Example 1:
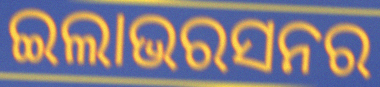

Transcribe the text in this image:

ଇଲାଭରସନର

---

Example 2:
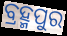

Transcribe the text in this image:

ବ୍ରହ୍ମପୁର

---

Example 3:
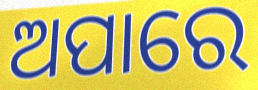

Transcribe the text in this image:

ଅପାରେ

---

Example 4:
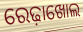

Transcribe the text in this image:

ରେଢ଼ାଖୋଲ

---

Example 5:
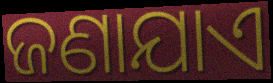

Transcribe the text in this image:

ଜଣାଯାଏ